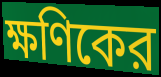
ক্ষণিকের